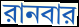
রানবার